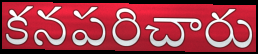
కనపరిచారు